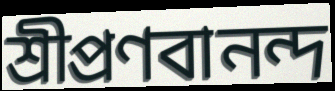
শ্রীপ্রণবানন্দ